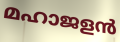
മഹാജളൻ